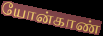
யோன்காண்